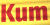
Kum